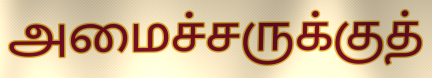
அமைச்சருக்குத்